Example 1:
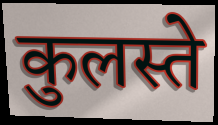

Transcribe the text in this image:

कुलस्ते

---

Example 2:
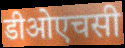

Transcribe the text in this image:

डीओएचसी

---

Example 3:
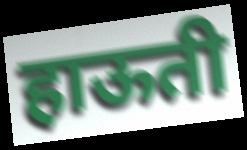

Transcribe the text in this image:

हाऊती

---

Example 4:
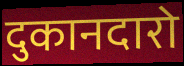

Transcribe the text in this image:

दुकानदारो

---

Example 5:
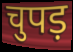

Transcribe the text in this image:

चुपड़